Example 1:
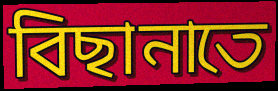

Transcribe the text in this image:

বিছানাতে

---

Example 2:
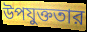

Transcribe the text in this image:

উপযুক্ততার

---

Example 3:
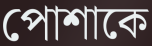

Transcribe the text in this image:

পোশাকে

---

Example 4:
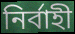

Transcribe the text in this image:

নির্বাহী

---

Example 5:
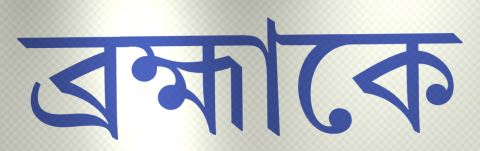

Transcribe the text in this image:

ব্রহ্মাকে